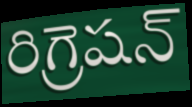
రిగ్రెషన్